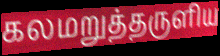
கலமறுத்தருளிய